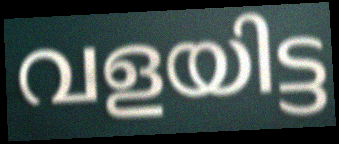
വളയിട്ട